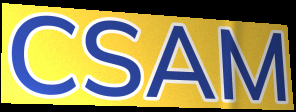
CSAM